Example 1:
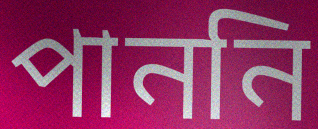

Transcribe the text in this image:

পাননি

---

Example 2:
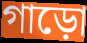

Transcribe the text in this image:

গাড়ো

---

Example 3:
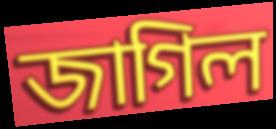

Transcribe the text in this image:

জাগিল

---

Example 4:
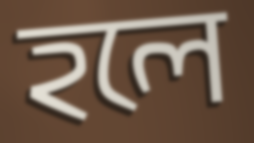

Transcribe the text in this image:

হলে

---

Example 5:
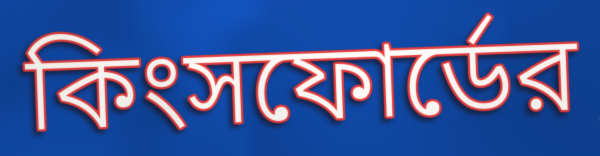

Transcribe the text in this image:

কিংসফোর্ডের